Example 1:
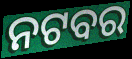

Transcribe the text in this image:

ନଟବର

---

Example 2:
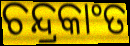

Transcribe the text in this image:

ଚନ୍ଦ୍ରକାଂତ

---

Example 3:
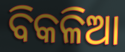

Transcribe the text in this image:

ବିକଳିଆ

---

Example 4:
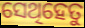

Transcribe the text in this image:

ସେଥିହେତୁ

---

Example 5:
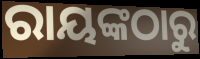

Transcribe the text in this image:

ରାୟଙ୍କଠାରୁ